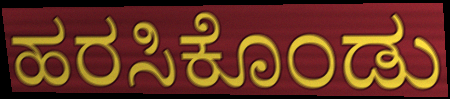
ಹರಸಿಕೊಂಡು